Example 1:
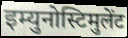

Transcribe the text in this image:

इम्युनोस्टिमुलेंट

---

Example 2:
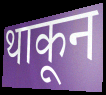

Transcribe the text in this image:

थाकून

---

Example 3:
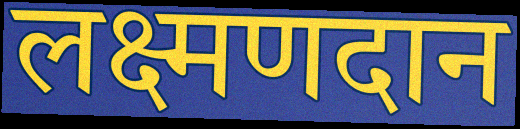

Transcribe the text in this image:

लक्ष्मणदान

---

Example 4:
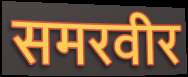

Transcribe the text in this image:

समरवीर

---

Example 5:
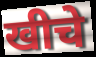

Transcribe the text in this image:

खीचे